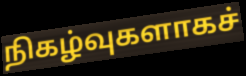
நிகழ்வுகளாகச்